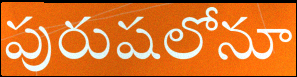
పురుషలోనూ